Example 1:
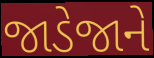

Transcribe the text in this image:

જાડેજાને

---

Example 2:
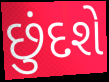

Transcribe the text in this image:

છુંદશે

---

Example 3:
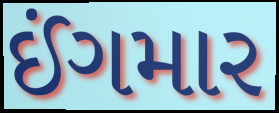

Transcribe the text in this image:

ઈંગમાર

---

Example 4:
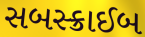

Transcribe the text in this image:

સબસ્ક્રાઈબ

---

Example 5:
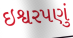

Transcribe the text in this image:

ઇશ્વરપણું